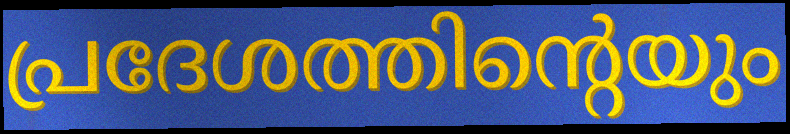
പ്രദേശത്തിന്റെയും